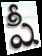
షీ